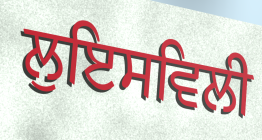
ਲੁਇਸਵਿਲੀ